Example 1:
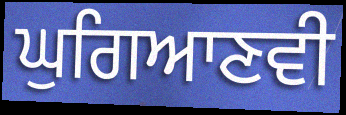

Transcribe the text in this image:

ਘੁਗਿਆਣਵੀ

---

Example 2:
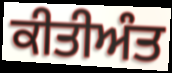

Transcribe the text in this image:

ਕੀਤੀਅੰਤ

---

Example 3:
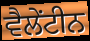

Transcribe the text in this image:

ਵੈਲੇਂਟੀਨ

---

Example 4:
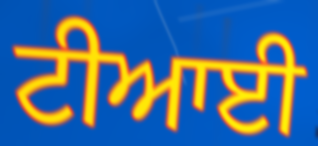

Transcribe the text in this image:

ਟੀਆਈ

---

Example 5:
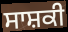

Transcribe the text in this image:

ਸਾਸ਼ਕੀ